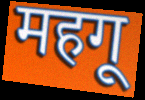
महगू